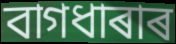
বাগধাৰাৰ